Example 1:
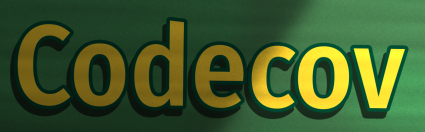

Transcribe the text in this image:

Codecov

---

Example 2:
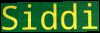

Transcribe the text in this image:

Siddi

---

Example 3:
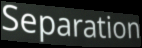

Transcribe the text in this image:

Separation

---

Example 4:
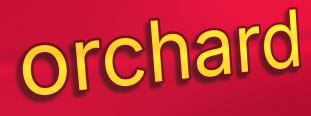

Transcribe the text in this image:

orchard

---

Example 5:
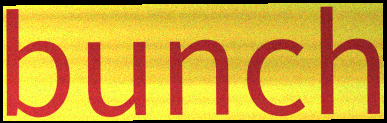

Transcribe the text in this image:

bunch